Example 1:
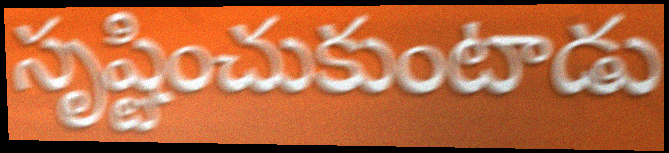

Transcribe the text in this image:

సృష్టించుకుంటాడు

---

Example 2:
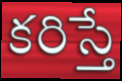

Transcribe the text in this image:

కరిస్తే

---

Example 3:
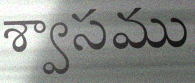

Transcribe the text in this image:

శ్వాసము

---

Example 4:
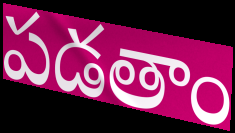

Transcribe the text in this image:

పడతాం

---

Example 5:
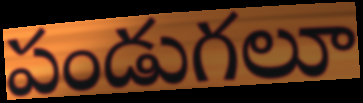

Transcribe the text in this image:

పండుగలూ